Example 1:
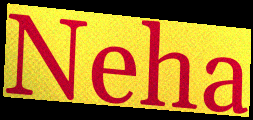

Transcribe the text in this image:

Neha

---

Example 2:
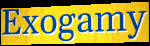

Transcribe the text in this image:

Exogamy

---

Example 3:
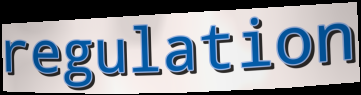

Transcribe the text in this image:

regulation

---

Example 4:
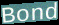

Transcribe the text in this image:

Bond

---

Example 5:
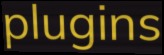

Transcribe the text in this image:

plugins